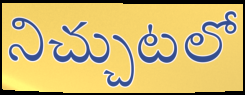
నిచ్చుటలో